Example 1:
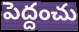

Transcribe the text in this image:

పెద్దంచు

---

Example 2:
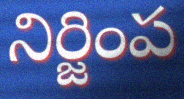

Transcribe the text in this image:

నిర్జింప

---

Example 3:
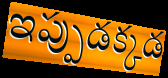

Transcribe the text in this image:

ఇప్పుడక్కడ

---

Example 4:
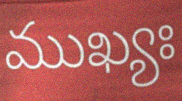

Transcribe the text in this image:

ముఖ్యః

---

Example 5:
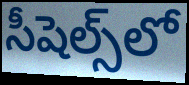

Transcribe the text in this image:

సీషెల్స్‌లో